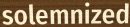
solemnized